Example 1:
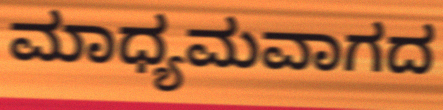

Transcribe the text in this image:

ಮಾಧ್ಯಮವಾಗದ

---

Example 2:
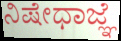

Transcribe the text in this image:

ನಿಷೇಧಾಜ್ಞೆ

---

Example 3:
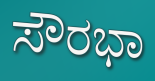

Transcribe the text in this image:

ಸೌರಭಾ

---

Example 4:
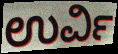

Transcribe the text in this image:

ಉರ್ವಿ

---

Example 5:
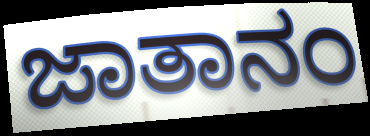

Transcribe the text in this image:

ಜಾತಾನಂ